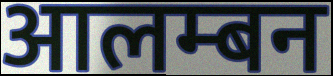
आलम्बन